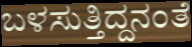
ಬಳಸುತ್ತಿದ್ದನಂತೆ